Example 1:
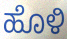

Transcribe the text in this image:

ಹೊಳಿ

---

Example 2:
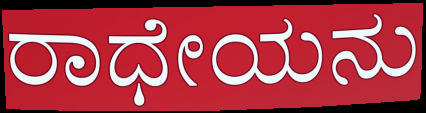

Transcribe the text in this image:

ರಾಧೇಯನು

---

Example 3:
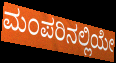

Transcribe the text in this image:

ಮಂಪರಿನಲ್ಲಿಯೇ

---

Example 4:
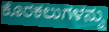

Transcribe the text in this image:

ಕೊರಕಲುಗಳನ್ನು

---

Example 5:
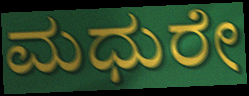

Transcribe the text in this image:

ಮಧುರೇ